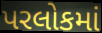
પરલોકમાં